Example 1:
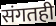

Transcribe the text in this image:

संगतही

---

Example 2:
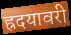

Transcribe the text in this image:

ह्रदयावरी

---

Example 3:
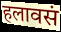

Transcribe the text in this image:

हलावसं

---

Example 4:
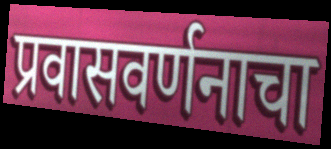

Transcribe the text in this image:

प्रवासवर्णनाचा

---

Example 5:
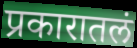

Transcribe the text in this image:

प्रकारातलं